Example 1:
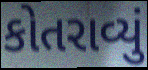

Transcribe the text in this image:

કોતરાવ્યું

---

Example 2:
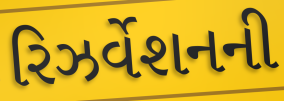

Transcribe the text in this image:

રિઝર્વેશનની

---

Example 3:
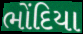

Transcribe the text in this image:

ભોંદિયા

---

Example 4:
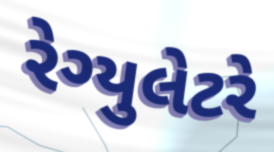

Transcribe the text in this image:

રેગ્યુલેટરે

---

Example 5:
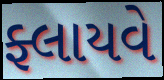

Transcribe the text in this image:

ફ્લાયવે